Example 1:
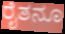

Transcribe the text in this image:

ರೈತನೂ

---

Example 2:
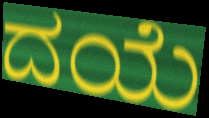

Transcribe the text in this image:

ದಯೆ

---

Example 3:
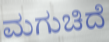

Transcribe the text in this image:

ಮಗುಚಿದೆ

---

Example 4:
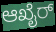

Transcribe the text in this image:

ಆಖೈರ್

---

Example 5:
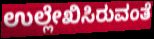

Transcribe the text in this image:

ಉಲ್ಲೇಖಿಸಿರುವಂತೆ